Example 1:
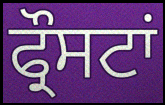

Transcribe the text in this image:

ਫ੍ਰੌਸਟਾਂ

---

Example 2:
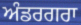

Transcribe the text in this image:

ਅੰਡਰਗਰਾ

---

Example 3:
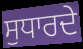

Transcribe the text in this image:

ਸੁਧਾਰਦੇ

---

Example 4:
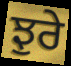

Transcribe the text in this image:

ਝੁਰੇ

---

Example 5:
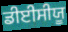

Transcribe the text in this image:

ਡੀਈਸੀਯੂ